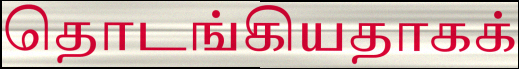
தொடங்கியதாகக்